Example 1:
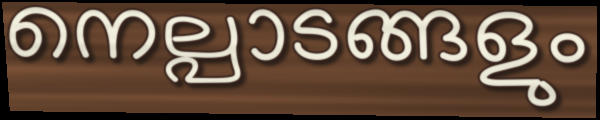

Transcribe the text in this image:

നെല്പാടങ്ങളും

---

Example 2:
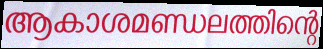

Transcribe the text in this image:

ആകാശമണ്ഡലത്തിന്റെ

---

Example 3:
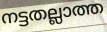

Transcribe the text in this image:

നട്ടതല്ലാത്ത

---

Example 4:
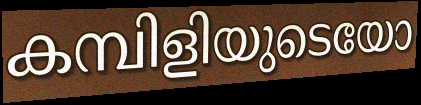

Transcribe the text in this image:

കമ്പിളിയുടെയോ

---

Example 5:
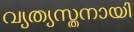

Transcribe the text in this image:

വ്യത്യസ്തനായി